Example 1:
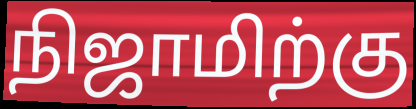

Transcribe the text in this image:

நிஜாமிற்கு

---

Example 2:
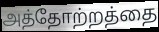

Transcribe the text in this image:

அத்தோற்றத்தை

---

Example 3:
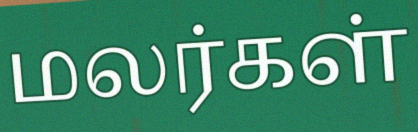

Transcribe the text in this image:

மலர்கள்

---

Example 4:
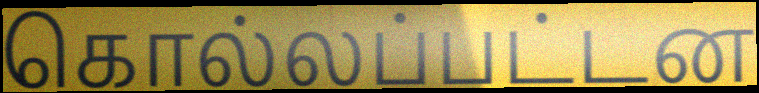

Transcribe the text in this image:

கொல்லப்பட்டன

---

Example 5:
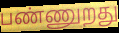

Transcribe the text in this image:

பண்ணுறது